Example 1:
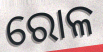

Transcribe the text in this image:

ରୋଳ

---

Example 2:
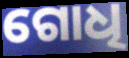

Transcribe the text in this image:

ଗୋଧି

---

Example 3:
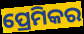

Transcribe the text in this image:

ପ୍ରେମିକର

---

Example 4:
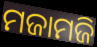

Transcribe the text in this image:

ମଜାମଜି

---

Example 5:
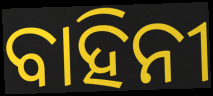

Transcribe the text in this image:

ବାହିନୀ